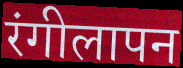
रंगीलापन